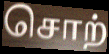
சொற்